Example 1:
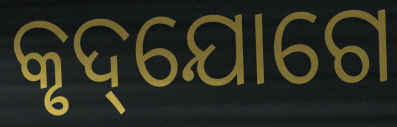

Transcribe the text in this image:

କୃଦ୍‌ଯୋଗେ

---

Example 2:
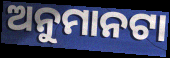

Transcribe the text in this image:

ଅନୁମାନଟା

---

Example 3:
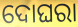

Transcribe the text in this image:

ଦୋଘରା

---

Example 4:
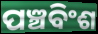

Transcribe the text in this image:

ପଞ୍ଚବିଂଶ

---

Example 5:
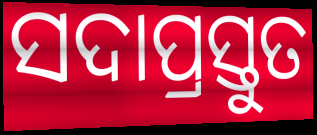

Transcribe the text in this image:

ସଦାପ୍ରସ୍ତୁତ